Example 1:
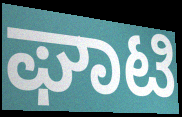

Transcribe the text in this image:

ಘಾಟಿ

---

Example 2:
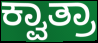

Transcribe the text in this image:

ಕ್ವಾತ್ರಾ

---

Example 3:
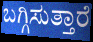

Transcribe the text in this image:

ಬಗ್ಗಿಸುತ್ತಾರೆ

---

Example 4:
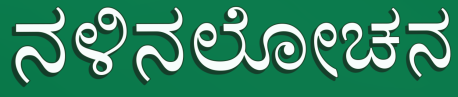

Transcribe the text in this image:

ನಳಿನಲೋಚನ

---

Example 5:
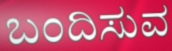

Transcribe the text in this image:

ಬಂದಿಸುವ